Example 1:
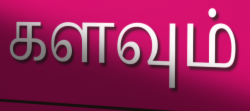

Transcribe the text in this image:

களவும்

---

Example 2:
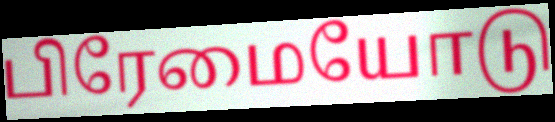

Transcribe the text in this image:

பிரேமையோடு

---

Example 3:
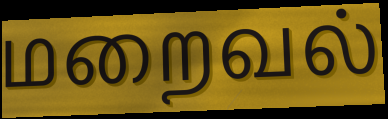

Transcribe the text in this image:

மறைவல்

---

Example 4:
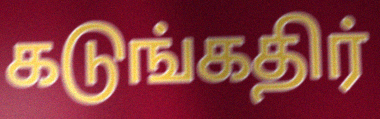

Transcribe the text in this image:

கடுங்கதிர்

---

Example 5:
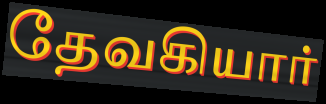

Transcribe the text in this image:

தேவகியார்